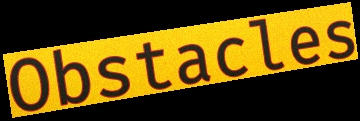
Obstacles